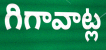
గిగావాట్ల